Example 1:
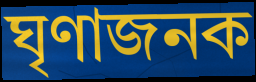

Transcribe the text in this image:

ঘৃণাজনক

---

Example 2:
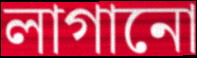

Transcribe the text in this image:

লাগানো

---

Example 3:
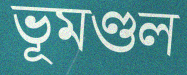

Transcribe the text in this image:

ভূমণ্ডল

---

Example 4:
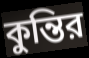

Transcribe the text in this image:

কুন্তির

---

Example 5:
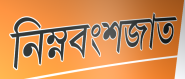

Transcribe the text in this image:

নিম্নবংশজাত